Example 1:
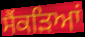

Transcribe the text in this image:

ਸੈਂਕੜਿਆਂ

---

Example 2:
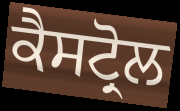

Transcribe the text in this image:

ਕੈਸਟ੍ਰੋਲ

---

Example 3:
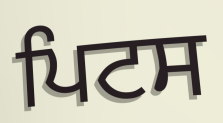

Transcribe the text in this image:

ਪਿਟਸ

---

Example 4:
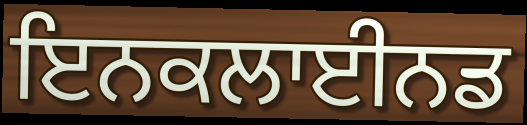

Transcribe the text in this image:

ਇਨਕਲਾਈਨਡ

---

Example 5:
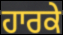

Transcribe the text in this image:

ਹਾਰਕੇ